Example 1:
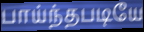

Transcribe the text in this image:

பாய்ந்தபடியே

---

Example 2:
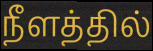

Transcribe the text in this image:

நீளத்தில்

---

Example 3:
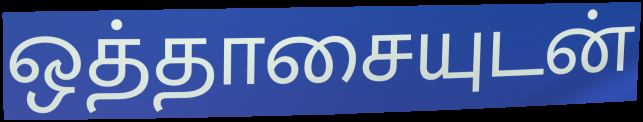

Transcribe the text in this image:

ஒத்தாசையுடன்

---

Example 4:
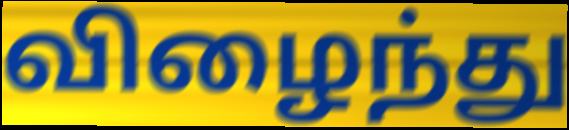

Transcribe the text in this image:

விழைந்து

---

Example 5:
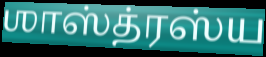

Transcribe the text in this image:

ஶாஸ்த்ரஸ்ய